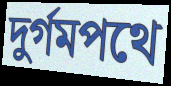
দুর্গমপথে